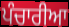
ਪੰਚਾਰੀਆ